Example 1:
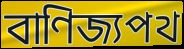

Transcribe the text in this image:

বাণিজ্যপথ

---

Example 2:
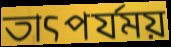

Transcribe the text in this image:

তাৎপর্যময়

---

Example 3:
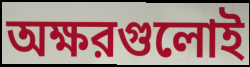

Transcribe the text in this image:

অক্ষরগুলোই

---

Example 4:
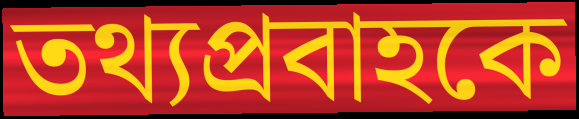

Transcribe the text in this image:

তথ্যপ্রবাহকে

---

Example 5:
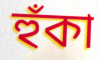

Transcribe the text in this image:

হুঁকা